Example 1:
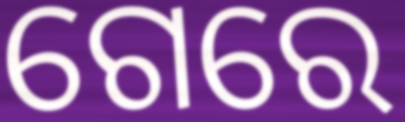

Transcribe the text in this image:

ଗେରେ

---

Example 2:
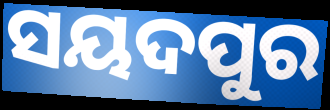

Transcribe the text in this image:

ସୟଦପୁର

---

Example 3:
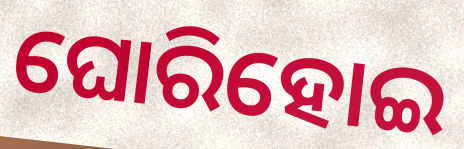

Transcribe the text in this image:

ଘୋରିହୋଇ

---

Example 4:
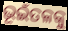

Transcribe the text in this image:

ଭୂଇଁତଳକୁ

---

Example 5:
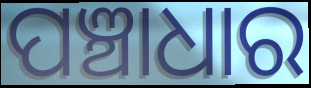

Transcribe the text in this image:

ପଞ୍ଚାଧାର